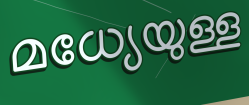
മധ്യേയുള്ള